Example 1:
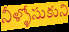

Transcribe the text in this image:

నీళ్ళోసుకుని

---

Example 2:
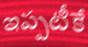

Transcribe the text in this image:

ఇప్పటీకే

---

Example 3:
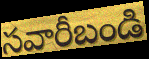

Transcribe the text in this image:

సవారీబండి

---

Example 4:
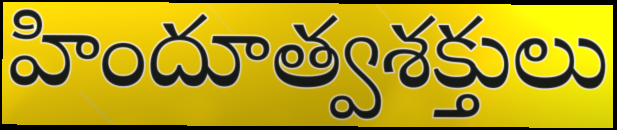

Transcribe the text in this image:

హిందూత్వశక్తులు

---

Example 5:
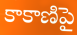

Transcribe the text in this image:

కాకాణిపై